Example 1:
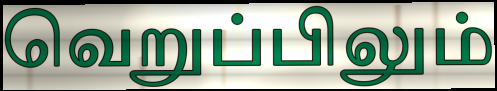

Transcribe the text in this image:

வெறுப்பிலும்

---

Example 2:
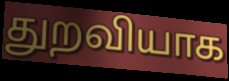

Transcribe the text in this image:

துறவியாக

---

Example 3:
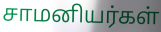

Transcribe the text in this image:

சாமனியர்கள்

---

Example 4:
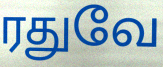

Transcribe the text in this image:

ரதுவே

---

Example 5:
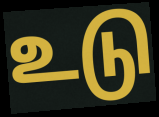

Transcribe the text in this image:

உடு